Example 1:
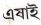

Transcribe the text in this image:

এষাই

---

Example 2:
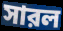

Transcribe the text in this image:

সারল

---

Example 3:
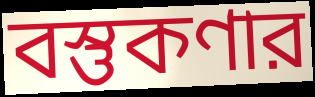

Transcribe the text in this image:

বস্তুকণার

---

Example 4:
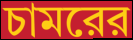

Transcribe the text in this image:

চামরের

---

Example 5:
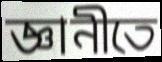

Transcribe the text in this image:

জ্ঞানীতে